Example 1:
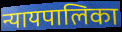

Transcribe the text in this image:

न्यायपालिका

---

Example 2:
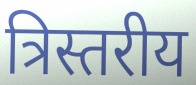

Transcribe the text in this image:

त्रिस्तरीय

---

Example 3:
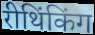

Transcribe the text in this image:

रीथिंकिंग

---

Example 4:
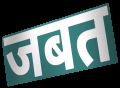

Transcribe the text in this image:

जबत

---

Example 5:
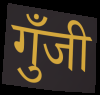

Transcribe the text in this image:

गुँजी